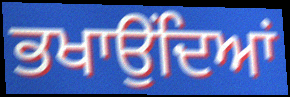
ਭਖਾਉਂਦਿਆਂ